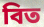
বিত